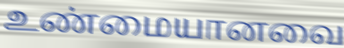
உண்மையானவை